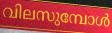
വിലസുമ്പോൾ